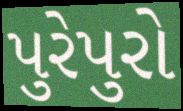
પુરેપુરો